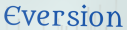
Eversion